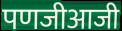
पणजीआजी